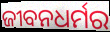
ଜୀବନଧର୍ମର